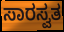
ಸಾರಸ್ವತ